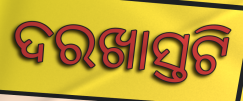
ଦରଖାସ୍ତଟି